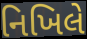
નિખિલે